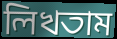
লিখতাম